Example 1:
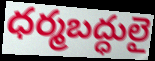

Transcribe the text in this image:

ధర్మబద్ధులై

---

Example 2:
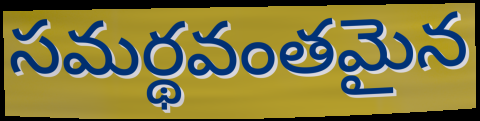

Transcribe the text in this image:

సమర్థవంతమైన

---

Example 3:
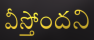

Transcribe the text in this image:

వీస్తోందని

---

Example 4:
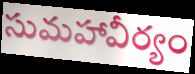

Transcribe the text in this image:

సుమహావీర్యం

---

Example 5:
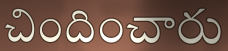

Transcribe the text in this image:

చిందించారు